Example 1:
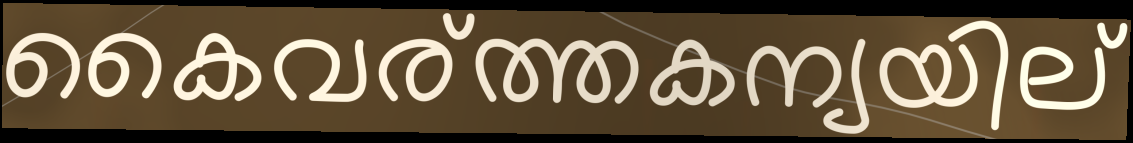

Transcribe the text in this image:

കൈവര്ത്തകന്യയില്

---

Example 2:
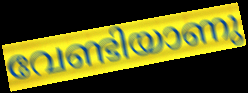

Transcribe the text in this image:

വേണ്ടിയാണു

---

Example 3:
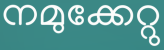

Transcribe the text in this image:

നമുക്കേറ്റു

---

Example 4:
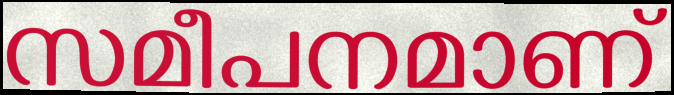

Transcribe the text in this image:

സമീപനമാണ്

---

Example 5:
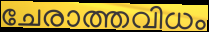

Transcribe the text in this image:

ചേരാത്തവിധം